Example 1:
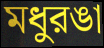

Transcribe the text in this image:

মধুরঙা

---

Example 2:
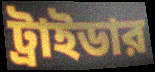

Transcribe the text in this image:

ট্রাইডার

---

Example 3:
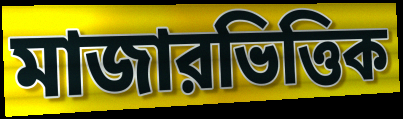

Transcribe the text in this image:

মাজারভিত্তিক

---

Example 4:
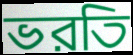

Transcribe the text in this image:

ভরতি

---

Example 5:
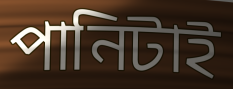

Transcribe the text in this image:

পানিটাই